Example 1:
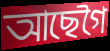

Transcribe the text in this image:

আছেগৈ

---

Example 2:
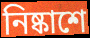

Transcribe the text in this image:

নিষ্কাশে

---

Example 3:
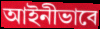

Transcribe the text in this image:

আইনীভাবে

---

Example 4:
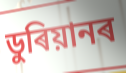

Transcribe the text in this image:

ডুৰিয়ানৰ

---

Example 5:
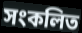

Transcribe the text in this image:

সংকলিত